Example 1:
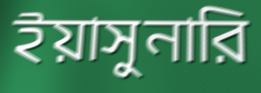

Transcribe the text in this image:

ইয়াসুনারি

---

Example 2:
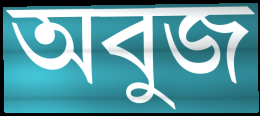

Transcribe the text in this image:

অবুজ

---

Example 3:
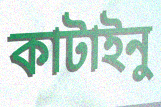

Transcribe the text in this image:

কাটাইনু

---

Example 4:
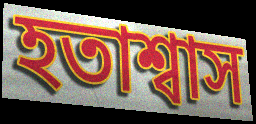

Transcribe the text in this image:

হতাশ্বাস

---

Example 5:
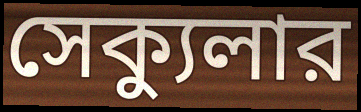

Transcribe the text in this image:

সেক্যুলার